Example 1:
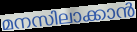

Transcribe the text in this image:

മനസിലാക്കാൻ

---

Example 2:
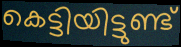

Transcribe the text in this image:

കെട്ടിയിട്ടുണ്ട്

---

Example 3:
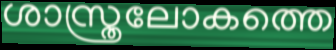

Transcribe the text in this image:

ശാസ്ത്രലോകത്തെ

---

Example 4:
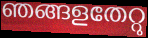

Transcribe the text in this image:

ഞങ്ങളതേറ്റു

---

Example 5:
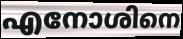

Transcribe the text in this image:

എനോശിനെ